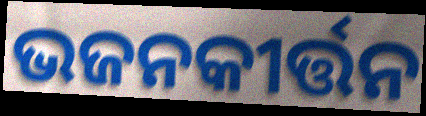
ଭଜନକୀର୍ତ୍ତନ